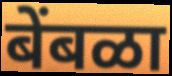
बेंबळा